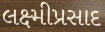
લક્ષ્મીપ્રસાદ